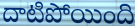
దాటిపోయింది